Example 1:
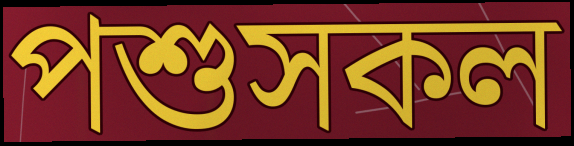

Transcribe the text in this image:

পশুসকল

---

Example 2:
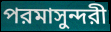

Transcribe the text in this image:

পরমাসুন্দরী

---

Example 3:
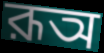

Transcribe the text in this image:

রূঅ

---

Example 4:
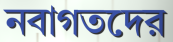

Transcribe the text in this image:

নবাগতদের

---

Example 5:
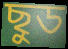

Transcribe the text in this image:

ছুড